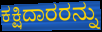
ಕಕ್ಷಿದಾರರನ್ನು